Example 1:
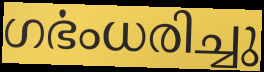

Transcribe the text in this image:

ഗൎഭംധരിച്ചു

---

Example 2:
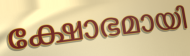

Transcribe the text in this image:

ക്ഷോഭമായി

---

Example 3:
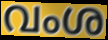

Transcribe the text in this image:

വംശ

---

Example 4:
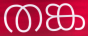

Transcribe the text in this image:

തങ്ക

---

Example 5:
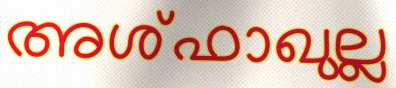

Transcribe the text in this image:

അശ്ഫാഖുല്ല